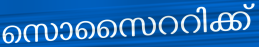
സൊസൈററിക്ക്